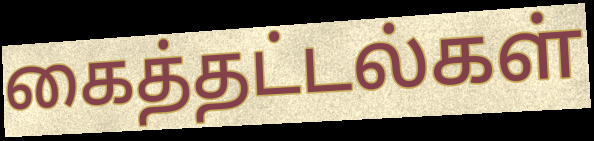
கைத்தட்டல்கள்